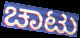
ಚಾಟು